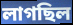
লাগছিল